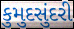
કુમુદસુંદરી